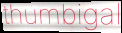
thumbigal